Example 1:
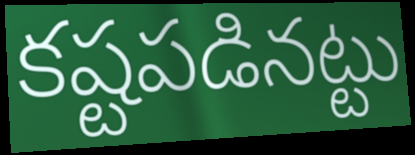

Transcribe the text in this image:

కష్టపడినట్టు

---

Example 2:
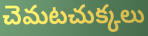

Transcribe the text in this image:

చెమటచుక్కలు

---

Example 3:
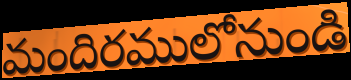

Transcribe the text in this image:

మందిరములోనుండి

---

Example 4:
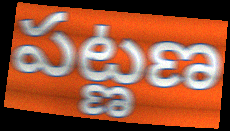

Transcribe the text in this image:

పట్ణణ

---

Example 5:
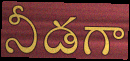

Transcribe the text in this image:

నీడగా